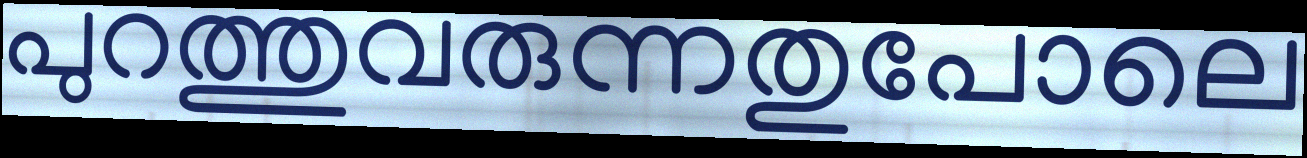
പുറത്തുവരുന്നതുപോലെ